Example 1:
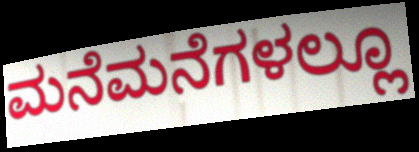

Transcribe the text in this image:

ಮನೆಮನೆಗಳಲ್ಲೂ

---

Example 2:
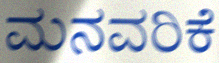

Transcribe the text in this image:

ಮನವರಿಕೆ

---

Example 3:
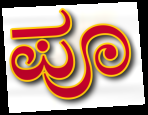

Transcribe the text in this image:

ಪೂ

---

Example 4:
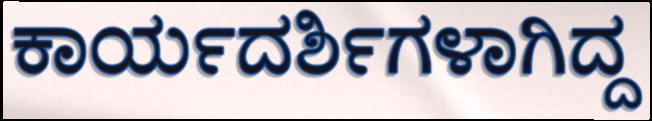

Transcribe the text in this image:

ಕಾರ್ಯದರ್ಶಿಗಳಾಗಿದ್ದ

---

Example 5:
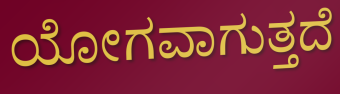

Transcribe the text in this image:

ಯೋಗವಾಗುತ್ತದೆ